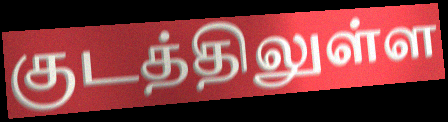
குடத்திலுள்ள